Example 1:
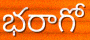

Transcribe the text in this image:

భరాగో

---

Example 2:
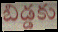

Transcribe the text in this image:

బిడ్డకు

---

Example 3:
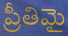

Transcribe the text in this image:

ప్రీతిమై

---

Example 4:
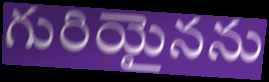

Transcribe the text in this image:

గురియైనను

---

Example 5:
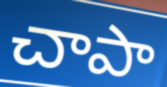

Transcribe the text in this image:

చాపా